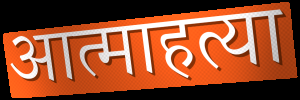
आत्माहत्या